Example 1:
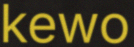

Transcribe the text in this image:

kewo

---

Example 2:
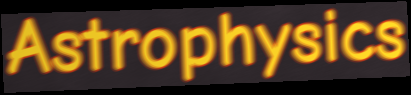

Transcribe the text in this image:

Astrophysics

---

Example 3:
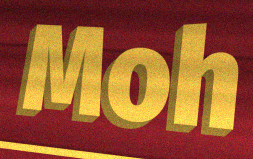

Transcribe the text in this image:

Moh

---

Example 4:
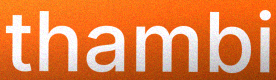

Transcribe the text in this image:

thambi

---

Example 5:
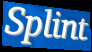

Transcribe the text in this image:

Splint